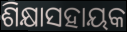
ଶିକ୍ଷାସହାୟକ